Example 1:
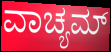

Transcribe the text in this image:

ವಾಚ್ಯಮ್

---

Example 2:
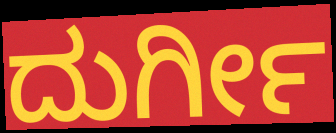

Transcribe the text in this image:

ದುರ್ಗೀ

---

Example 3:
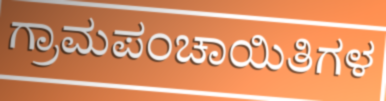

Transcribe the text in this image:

ಗ್ರಾಮಪಂಚಾಯಿತಿಗಳ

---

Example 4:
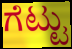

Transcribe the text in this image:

ಗೆಟ್ಟು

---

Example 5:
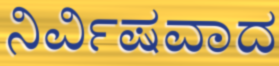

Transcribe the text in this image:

ನಿರ್ವಿಷವಾದ